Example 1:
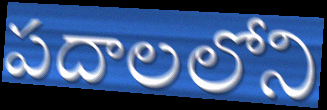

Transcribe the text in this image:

పదాలలోని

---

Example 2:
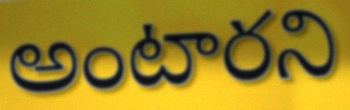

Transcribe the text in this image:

అంటారని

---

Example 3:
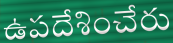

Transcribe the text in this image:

ఉపదేశించేరు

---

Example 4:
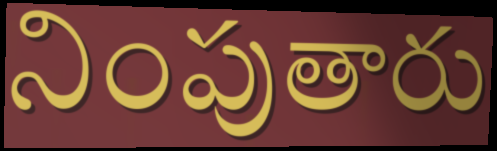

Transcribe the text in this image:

నింపుతారు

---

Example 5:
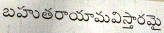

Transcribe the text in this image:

బహుతరాయామవిస్తారమై